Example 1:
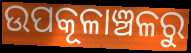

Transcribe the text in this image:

ଉପକୂଳାଞ୍ଚଳରୁ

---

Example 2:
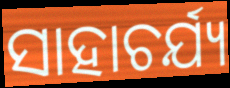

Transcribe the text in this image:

ସାହାଚର୍ଯ୍ୟ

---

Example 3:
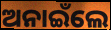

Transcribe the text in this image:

ଅନାଇଁଲେ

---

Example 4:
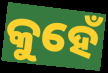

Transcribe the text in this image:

କୁହେଁ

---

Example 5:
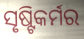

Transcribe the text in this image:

ସୃଷ୍ଟିକର୍ମର